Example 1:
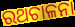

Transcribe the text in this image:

ରଥଚାଳନା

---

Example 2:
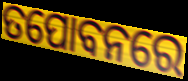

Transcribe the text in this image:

ତପୋବନରେ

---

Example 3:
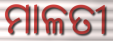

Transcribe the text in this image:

ମାଳତୀ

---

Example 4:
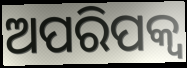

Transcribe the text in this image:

ଅପରିପକ୍ୱ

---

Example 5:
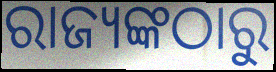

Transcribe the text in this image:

ରାଜ୍ୟଙ୍କଠାରୁ